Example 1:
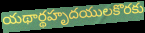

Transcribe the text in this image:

యథార్థహృదయులకొరకు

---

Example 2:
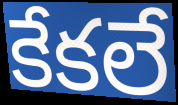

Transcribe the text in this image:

కేకలే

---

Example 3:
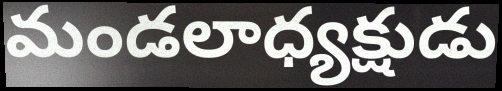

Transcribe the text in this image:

మండలాధ్యక్షుడు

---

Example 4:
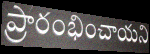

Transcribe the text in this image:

ప్రారంభించాయని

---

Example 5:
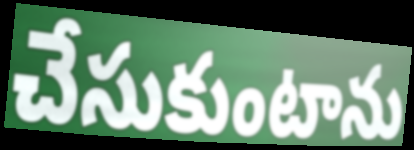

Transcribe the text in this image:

చేసుకుంటాను